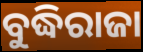
ବୁଦ୍ଧିରାଜା